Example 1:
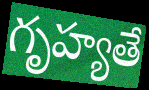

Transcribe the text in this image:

గృహ్యతే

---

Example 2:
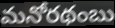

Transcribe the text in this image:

మనోరథంబు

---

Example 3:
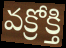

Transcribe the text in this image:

వక్రోక్తి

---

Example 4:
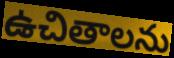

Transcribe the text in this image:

ఉచితాలను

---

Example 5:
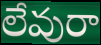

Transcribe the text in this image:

లేవురా